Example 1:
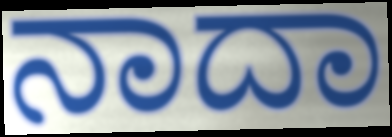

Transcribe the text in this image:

ನಾದಾ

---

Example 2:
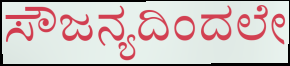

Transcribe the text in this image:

ಸೌಜನ್ಯದಿಂದಲೇ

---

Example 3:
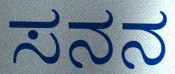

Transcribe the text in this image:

ಸನನ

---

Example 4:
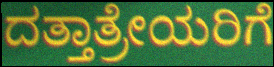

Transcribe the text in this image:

ದತ್ತಾತ್ರೇಯರಿಗೆ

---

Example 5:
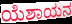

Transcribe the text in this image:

ಯೆಶಾಯನ